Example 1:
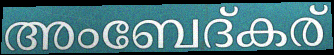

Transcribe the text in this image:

അംബേദ്കര്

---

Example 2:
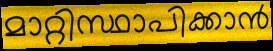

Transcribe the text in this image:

മാറ്റിസ്ഥാപിക്കാൻ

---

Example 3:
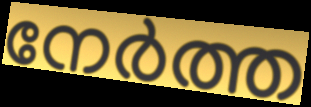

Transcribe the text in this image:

നേർത്ത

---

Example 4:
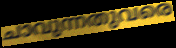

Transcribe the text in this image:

ചാവുന്നതുവരെ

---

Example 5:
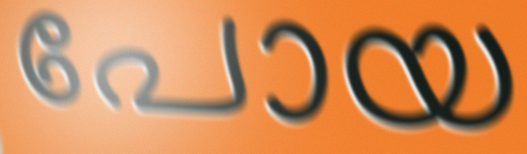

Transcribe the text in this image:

പോയ